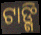
ଟାଙ୍ଗି